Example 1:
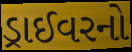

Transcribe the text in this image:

ડ્રાઈવરનો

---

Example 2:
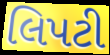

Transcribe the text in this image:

લિપટી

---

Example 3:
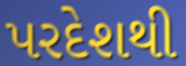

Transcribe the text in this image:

પરદેશથી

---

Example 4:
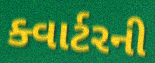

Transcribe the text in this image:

ક્વાર્ટરની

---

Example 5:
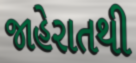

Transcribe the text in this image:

જાહેરાતથી